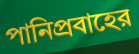
পানিপ্রবাহের